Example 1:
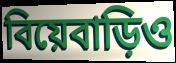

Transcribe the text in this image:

বিয়েবাড়িও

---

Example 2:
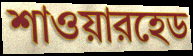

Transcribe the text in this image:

শাওয়ারহেড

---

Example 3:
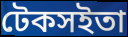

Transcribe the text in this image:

টেকসইতা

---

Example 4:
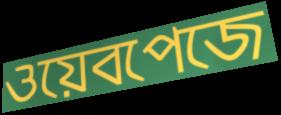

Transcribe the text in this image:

ওয়েবপেজে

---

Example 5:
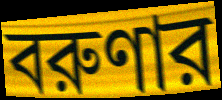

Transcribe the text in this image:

বরুণার